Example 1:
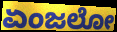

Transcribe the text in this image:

ಏಂಜಲೋ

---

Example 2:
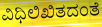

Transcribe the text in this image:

ವಿಧಿಲಿಖಿತದಂತೆ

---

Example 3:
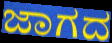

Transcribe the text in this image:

ಜಾಗದ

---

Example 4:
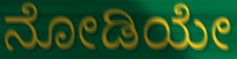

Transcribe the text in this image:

ನೋಡಿಯೇ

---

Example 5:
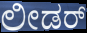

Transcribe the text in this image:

ಲೀಡರ್